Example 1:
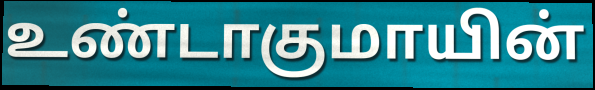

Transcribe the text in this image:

உண்டாகுமாயின்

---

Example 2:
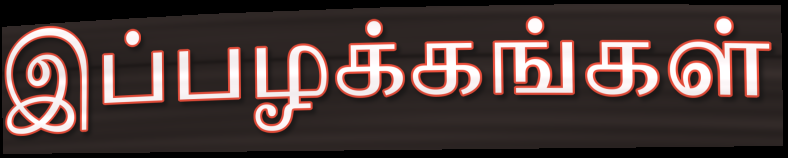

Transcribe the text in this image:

இப்பழக்கங்கள்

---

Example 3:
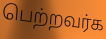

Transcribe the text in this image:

பெற்றவர்க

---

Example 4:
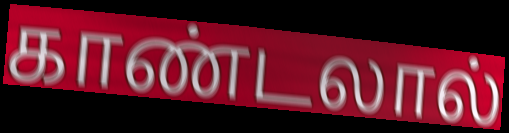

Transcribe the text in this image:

காண்டலால்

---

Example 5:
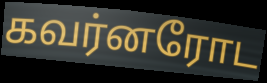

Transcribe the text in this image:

கவர்னரோட